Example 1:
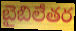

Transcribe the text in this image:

బైబిలేతర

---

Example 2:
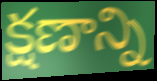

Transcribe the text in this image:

క్షణాన్ని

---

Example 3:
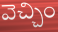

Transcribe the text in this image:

వెచ్చిం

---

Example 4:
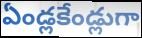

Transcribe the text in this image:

ఏండ్లకేండ్లుగా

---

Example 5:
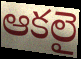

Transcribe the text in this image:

ఆకలై